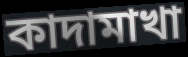
কাদামাখা